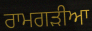
ਰਾਮਗੜੀਆ